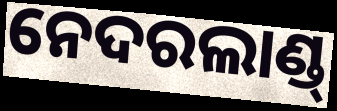
ନେଦରଲାଣ୍ଡ୍